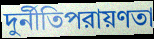
দুর্নীতিপরায়ণতা